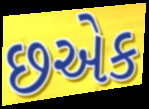
છએક